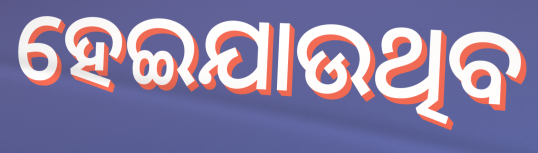
ହେଇଯାଉଥିବ